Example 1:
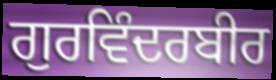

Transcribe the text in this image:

ਗੁਰਵਿੰਦਰਬੀਰ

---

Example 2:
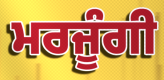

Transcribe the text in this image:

ਮਰਜੂੰਗੀ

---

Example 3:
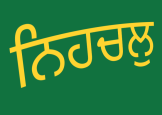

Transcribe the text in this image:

ਨਿਹਚਲੁ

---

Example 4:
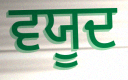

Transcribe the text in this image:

ਵਯੂਦ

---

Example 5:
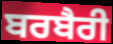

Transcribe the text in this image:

ਬਰਬੈਰੀ